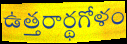
ఉత్తరార్థగోళం